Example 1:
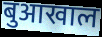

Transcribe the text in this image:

बुआखाल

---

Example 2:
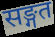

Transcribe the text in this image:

सङ्गत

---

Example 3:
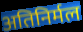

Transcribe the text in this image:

अतिनिर्मल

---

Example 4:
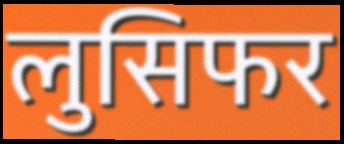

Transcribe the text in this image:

लुसिफर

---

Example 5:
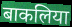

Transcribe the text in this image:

बाकलिया